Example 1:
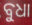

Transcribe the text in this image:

ବୁଧା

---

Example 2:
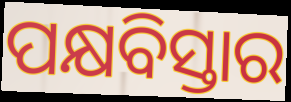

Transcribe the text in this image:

ପକ୍ଷବିସ୍ତାର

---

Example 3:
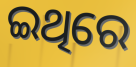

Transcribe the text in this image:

ଇଥିରେ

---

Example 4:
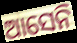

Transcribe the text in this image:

ଆସେନି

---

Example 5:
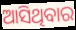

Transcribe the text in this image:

ଆସିଥିବାର